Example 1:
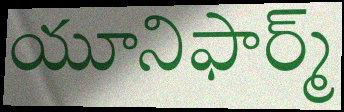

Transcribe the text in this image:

యూనిఫార్మ్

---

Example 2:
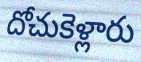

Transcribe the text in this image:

దోచుకెళ్లారు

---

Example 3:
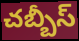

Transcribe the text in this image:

చబ్బీస్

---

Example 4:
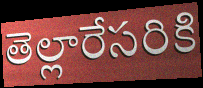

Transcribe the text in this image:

తెల్లారేసరికి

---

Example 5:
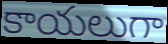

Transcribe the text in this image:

కాయలుగా